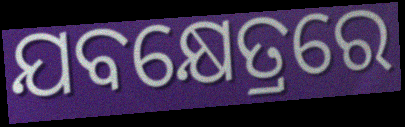
ଯବକ୍ଷେତ୍ରରେ